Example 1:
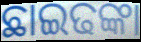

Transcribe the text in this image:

ଛାଇଢଙ୍କା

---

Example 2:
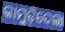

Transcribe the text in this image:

କାମୁଡ଼ିଦେଲା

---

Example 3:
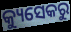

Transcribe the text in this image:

କ୍ୟୁସେକରୁ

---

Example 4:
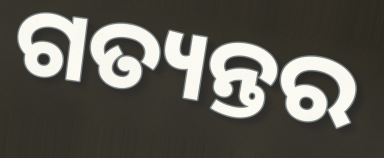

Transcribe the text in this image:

ଗତ୍ୟନ୍ତର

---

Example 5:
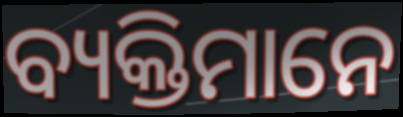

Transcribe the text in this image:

ବ୍ୟକ୍ତିମାନେ